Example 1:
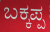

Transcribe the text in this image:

ಬಕ್ಕಪ್ಪ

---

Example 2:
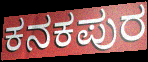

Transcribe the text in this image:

ಕನಕಪುರ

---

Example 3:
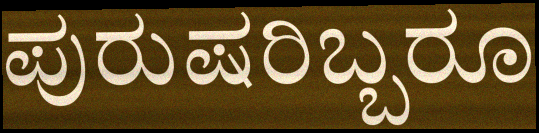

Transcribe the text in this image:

ಪುರುಷರಿಬ್ಬರೂ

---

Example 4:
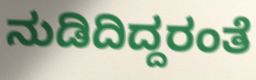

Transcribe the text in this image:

ನುಡಿದಿದ್ದರಂತೆ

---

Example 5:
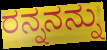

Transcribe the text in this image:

ರನ್ನನನ್ನು